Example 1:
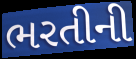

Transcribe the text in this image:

ભરતીની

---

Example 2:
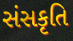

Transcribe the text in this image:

સંસકૃતિ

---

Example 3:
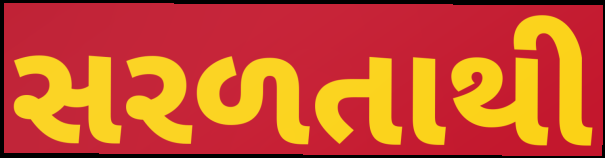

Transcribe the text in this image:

સરળતાથી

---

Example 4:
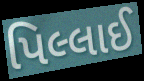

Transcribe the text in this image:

પિલ્લાઈ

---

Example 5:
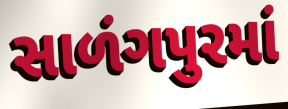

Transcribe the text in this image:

સાળંગપુરમાં